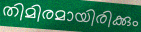
തിമിരമായിരിക്കും